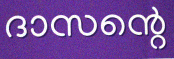
ദാസന്റെ